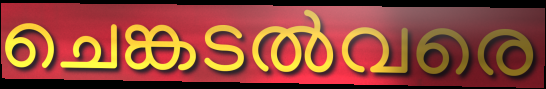
ചെങ്കടൽവരെ